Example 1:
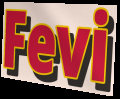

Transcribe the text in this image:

Fevi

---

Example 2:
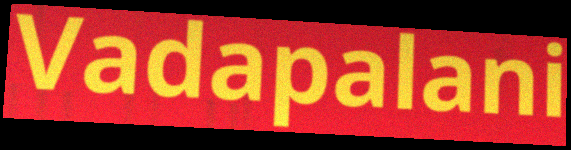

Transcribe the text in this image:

Vadapalani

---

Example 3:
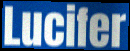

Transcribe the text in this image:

Lucifer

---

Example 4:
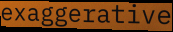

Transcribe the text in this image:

exaggerative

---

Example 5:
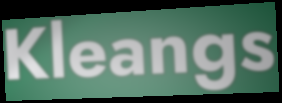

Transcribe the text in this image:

Kleangs